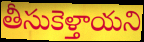
తీసుకెళ్తాయని